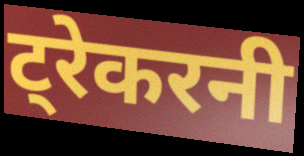
ट्रेकरनी